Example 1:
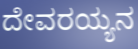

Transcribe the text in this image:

ದೇವರಯ್ಯನ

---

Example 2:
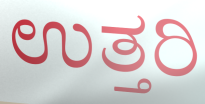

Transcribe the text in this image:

ಉತ್ತರಿ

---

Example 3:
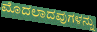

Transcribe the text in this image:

ಮೊದಲಾದವುಗಳನ್ನು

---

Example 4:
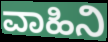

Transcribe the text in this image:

ವಾಹಿನಿ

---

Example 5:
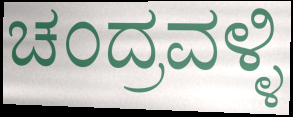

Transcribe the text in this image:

ಚಂದ್ರವಳ್ಳಿ